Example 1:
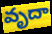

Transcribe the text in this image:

వృదా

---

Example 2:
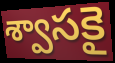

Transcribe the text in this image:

శ్వాసకై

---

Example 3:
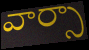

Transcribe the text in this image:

వార్సా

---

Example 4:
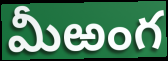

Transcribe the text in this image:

మీఱంగ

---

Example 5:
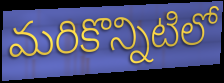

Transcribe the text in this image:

మరికొన్నిటిలో